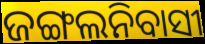
ଜଙ୍ଗଲନିବାସୀ